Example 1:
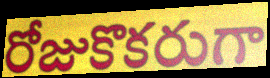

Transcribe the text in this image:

రోజుకొకరుగా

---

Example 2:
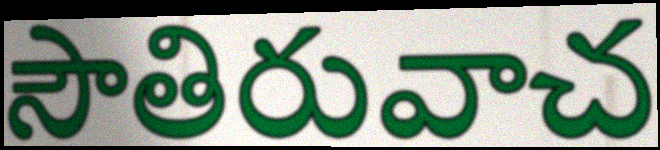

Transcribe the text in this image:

సౌతిరువాచ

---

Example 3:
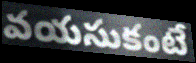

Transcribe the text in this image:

వయసుకంటే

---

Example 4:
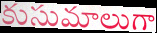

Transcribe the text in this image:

కుసుమాలుగా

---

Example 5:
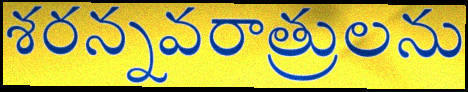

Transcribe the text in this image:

శరన్నవరాత్రులను